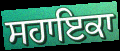
ਸਹਾਇਕਾ